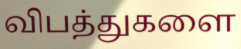
விபத்துகளை